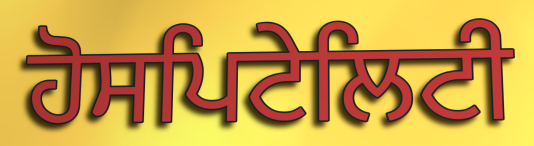
ਹੋਸਪਿਟੇਲਿਟੀ